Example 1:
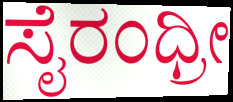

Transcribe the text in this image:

ಸೈರಂಧ್ರೀ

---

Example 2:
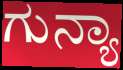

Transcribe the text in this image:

ಗುನ್ಯಾ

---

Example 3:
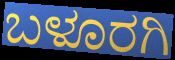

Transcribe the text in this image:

ಬಳೂರಗಿ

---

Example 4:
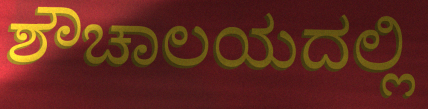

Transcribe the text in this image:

ಶೌಚಾಲಯದಲ್ಲಿ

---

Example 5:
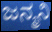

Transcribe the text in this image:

ಜನ್ಮನಿ